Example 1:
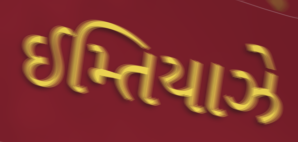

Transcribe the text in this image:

ઈમ્તિયાઝે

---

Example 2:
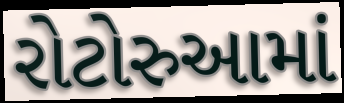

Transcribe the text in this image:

રોટોરુઆમાં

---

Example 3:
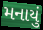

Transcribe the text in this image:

મનાયું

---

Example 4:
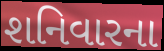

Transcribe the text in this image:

શનિવારના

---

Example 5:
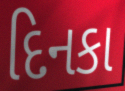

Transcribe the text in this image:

દિનકા